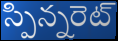
స్పిన్నరెట్